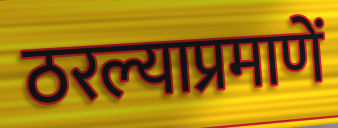
ठरल्याप्रमाणें